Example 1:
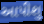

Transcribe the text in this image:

આપીશુ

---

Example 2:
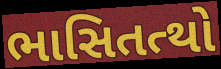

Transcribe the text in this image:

ભાસિતત્થો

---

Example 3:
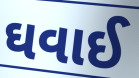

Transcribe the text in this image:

ઘવાઈ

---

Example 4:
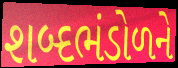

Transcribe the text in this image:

શબ્દભંડોળને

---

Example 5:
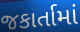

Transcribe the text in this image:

જકાર્તામાં